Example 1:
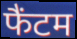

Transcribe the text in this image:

फैंटम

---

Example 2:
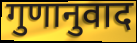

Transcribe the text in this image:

गुणानुवाद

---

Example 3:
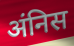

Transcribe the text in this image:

अंनिस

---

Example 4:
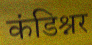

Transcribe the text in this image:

कंडिश्नर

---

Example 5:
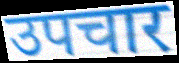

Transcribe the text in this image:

उपचार